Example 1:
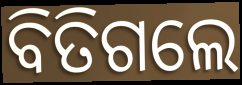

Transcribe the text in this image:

ବିତିଗଲେ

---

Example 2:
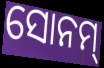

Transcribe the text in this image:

ସୋନମ୍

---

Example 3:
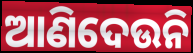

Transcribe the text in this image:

ଆଣିଦେଉନି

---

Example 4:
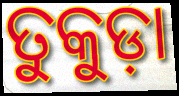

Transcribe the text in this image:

ତୁକୁଡ଼ା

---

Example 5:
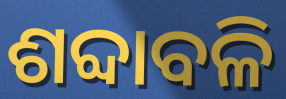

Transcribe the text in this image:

ଶବ୍ଦାବଳି